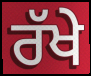
ਰੱਖੇ